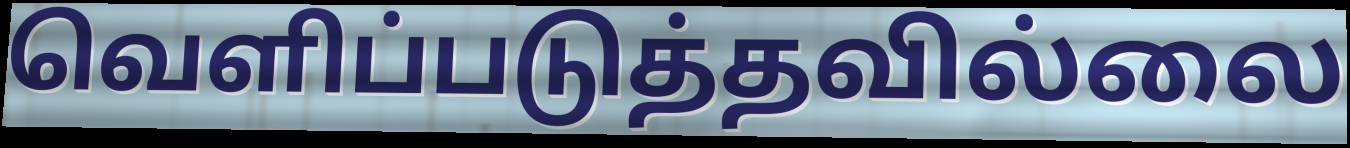
வெளிப்படுத்தவில்லை